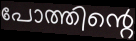
പോത്തിന്റെ